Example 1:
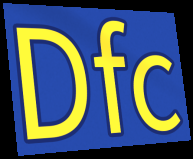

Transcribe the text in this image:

Dfc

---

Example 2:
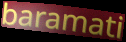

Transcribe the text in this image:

baramati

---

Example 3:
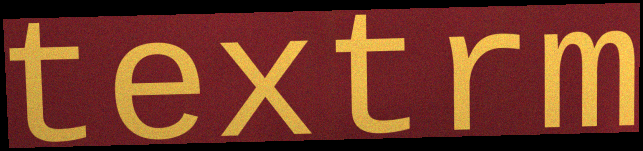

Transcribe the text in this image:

textrm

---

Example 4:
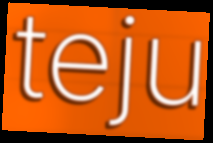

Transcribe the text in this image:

teju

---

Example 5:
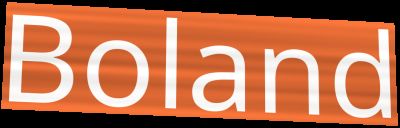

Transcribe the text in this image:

Boland